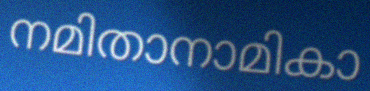
നമിതാനാമികാ